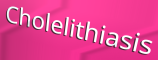
Cholelithiasis